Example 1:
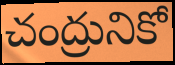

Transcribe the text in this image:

చంద్రునికో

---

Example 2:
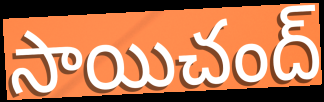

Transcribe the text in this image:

సాయిచంద్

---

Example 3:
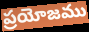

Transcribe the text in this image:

ప్రయోజము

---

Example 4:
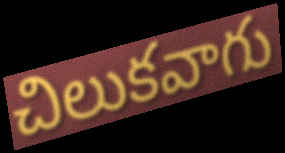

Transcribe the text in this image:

చిలుకవాగు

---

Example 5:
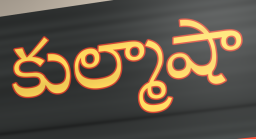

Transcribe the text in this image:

కుల్మాషా